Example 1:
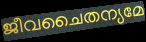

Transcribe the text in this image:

ജീവചൈതന്യമേ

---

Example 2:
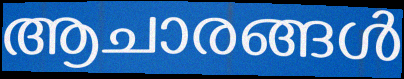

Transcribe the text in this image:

ആചാരങ്ങൾ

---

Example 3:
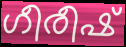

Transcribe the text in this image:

ഗീരീഷ്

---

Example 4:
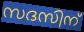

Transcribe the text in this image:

സദസിന്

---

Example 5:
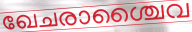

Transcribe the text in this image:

ഖേചരാശ്ചൈവ